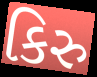
કિરુ